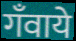
गँवाये